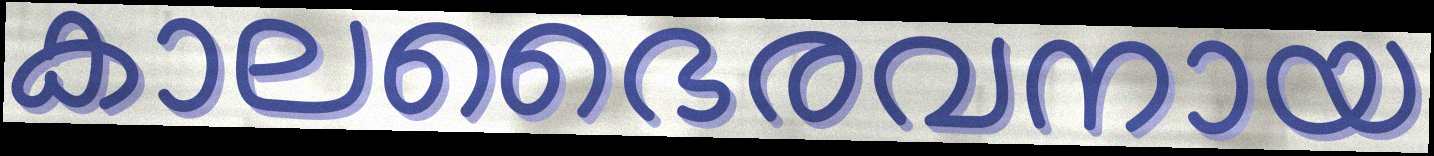
കാലഭൈരവനായ